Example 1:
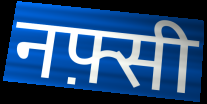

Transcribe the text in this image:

नफ़्सी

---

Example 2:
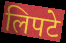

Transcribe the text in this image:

लिपटे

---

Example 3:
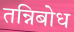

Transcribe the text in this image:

तन्निबोध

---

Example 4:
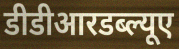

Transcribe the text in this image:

डीडीआरडब्ल्यूए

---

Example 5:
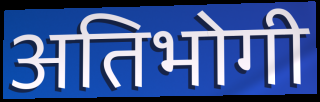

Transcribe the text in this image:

अतिभोगी